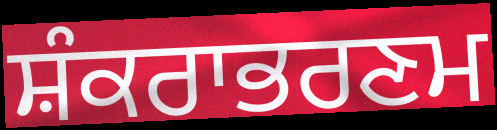
ਸ਼ੰਕਰਾਭਰਣਮ